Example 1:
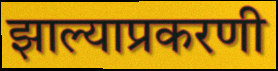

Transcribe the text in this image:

झाल्याप्रकरणी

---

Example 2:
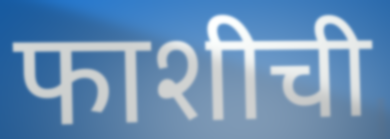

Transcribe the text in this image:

फाशीची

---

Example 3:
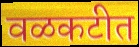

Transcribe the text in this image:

वळकटीत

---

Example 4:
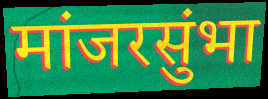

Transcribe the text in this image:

मांजरसुंभा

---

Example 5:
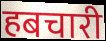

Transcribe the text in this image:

हबचारी